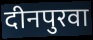
दीनपुरवा